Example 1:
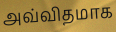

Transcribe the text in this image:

அவ்விதமாக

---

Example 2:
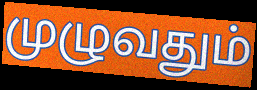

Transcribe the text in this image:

முழுவதும்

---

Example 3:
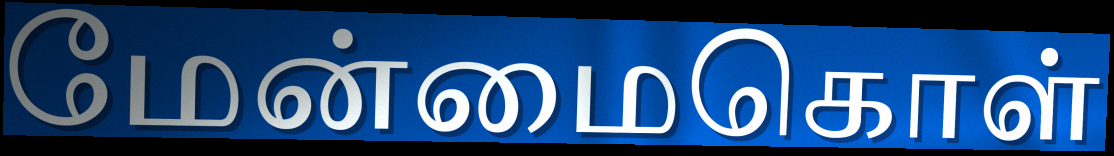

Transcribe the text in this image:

மேன்மைகொள்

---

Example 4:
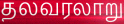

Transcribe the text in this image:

தலவரலாறு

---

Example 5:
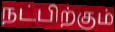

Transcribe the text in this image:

நட்பிற்கும்